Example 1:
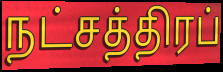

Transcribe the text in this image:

நட்சத்திரப்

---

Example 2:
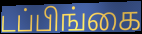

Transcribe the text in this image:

டப்பிங்கை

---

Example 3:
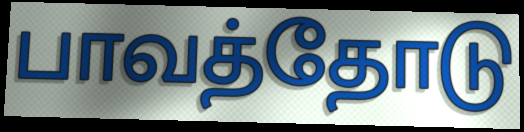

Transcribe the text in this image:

பாவத்தோடு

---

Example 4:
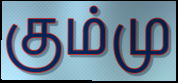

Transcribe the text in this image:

கும்மு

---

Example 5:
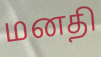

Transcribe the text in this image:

மனதி